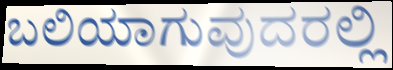
ಬಲಿಯಾಗುವುದರಲ್ಲಿ